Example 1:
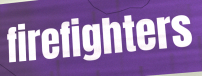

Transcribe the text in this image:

firefighters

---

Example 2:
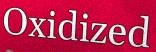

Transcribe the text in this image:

Oxidized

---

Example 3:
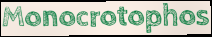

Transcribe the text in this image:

Monocrotophos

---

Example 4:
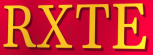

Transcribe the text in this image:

RXTE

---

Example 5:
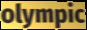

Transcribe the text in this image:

olympic